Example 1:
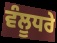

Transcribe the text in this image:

ਵੰਲੂਧਰੇ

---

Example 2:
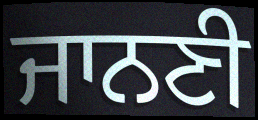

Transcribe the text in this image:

ਜਾਨਣੀ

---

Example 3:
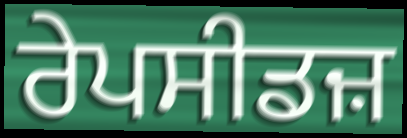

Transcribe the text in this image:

ਰੇਪਸੀਡਜ਼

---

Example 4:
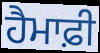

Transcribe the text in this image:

ਹੈਮਾਫ਼ੀ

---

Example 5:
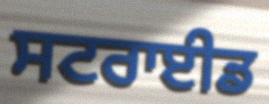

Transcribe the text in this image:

ਸਟਰਾਈਡ